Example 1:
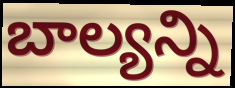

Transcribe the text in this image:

బాల్యన్ని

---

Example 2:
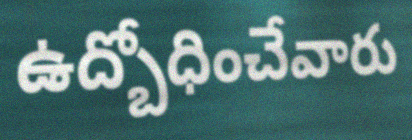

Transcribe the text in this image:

ఉద్బోధించేవారు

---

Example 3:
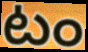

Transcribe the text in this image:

టం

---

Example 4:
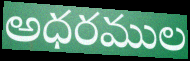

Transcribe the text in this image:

అధరముల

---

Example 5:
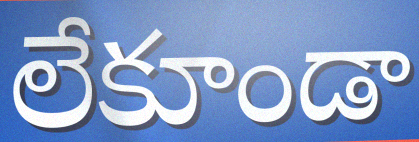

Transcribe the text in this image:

లేకూండా